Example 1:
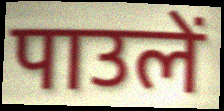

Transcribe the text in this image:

पाउलें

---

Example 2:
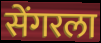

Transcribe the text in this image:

सेंगरला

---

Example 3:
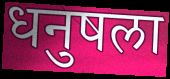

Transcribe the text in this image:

धनुषला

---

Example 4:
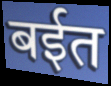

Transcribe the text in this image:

बईत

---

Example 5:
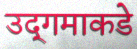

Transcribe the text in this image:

उद्‌गमाकडे